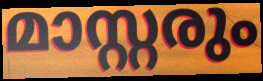
മാസ്റ്റരും